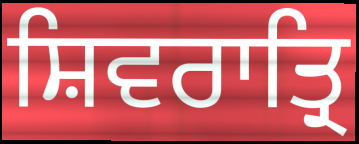
ਸ਼ਿਵਰਾਤ੍ਰਿ